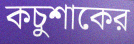
কচুশাকের